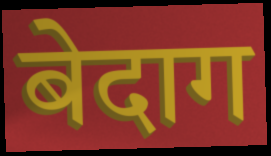
बेदाग